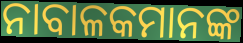
ନାବାଳକମାନଙ୍କ